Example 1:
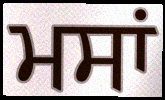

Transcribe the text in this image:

ਮਸਾਂ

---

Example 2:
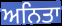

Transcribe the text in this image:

ਅਨਿਤਾ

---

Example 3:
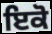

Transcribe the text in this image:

ਇਕੋ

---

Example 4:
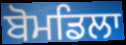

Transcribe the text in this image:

ਬੋਮਡਿਲਾ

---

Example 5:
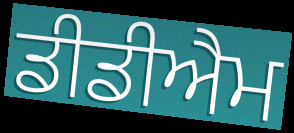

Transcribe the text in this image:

ਡੀਡੀਐਮ